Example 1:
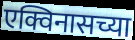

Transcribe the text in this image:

एक्विनासच्या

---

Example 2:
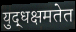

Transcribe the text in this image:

युद्धक्षमतेत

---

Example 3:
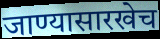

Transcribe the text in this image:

जाण्यासारखेच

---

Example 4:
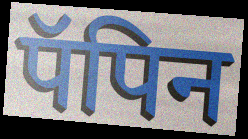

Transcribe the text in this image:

पॅपिन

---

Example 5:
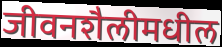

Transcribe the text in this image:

जीवनशैलीमधील